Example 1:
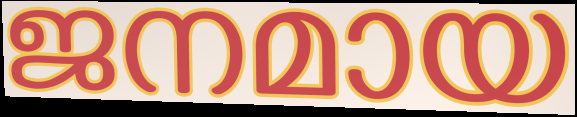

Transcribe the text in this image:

ജനമായ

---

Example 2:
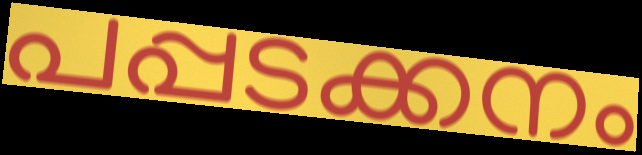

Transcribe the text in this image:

പപ്പടക്കനം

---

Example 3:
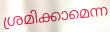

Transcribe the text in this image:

ശ്രമിക്കാമെന്ന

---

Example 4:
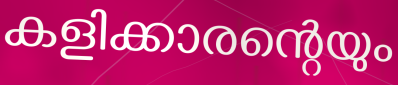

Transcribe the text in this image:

കളിക്കാരന്റെയും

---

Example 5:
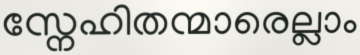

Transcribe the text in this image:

സ്നേഹിതന്മാരെല്ലാം